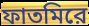
ফাতমিরে